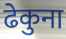
ढेकुना